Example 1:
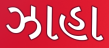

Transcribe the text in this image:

ઝાહા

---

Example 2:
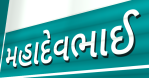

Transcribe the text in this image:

મહાદેવભાઈ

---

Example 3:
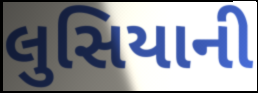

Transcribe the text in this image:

લુસિયાની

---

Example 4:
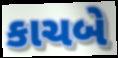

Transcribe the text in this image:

કાચબે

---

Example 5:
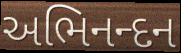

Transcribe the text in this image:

અભિનન્દન